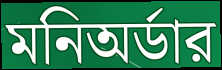
মনিঅর্ডার